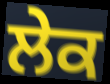
ਲੇਕ